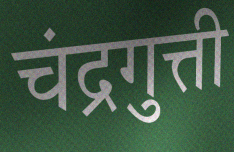
चंद्रगुत्ती